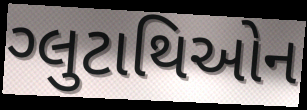
ગ્લુટાથિઓન